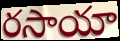
రసాయా